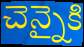
చెన్నైకి